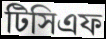
টিসিএফ